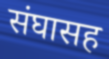
संघासह